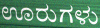
ಊರುಗಳು